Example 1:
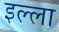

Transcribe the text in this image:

इल्ला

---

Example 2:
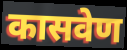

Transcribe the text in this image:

कासवेण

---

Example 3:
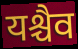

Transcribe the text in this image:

यश्चैव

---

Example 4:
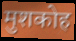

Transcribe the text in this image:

मुशकोह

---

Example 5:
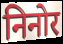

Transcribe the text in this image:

निनोर